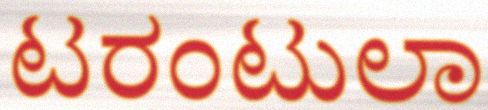
ಟರಂಟುಲಾ